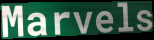
Marvels